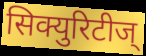
सिक्युरिटीज्